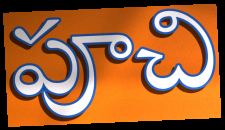
పూచి